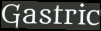
Gastric